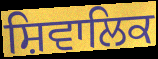
ਸ਼ਿਵਾਲਿਕ